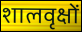
शालवृक्षों